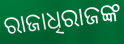
ରାଜାଧିରାଜଙ୍କ